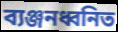
ব্যঞ্জনধ্বনিত